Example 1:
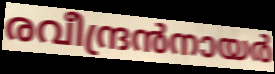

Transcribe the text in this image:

രവീന്ദ്രൻനായർ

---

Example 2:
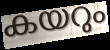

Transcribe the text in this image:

കയറും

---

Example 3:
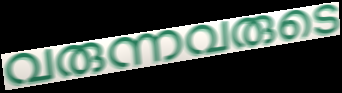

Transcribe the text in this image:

വരുന്നവരുടെ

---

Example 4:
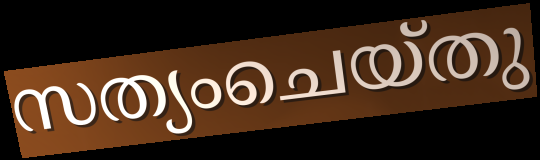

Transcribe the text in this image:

സത്യംചെയ്തു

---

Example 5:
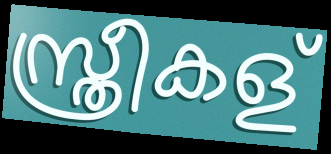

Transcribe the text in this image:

സ്ത്രീകള്